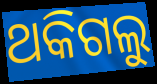
ଥକିଗଲୁ